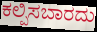
ಕಲ್ಪಿಸಬಾರದು